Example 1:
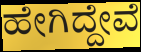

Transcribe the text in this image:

ಹೇಗಿದ್ದೇವೆ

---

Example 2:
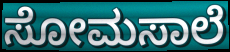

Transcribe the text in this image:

ಸೋಮಸಾಲೆ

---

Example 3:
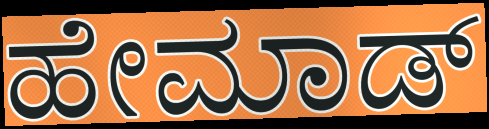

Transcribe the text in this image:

ಹೇಮಾಡ್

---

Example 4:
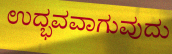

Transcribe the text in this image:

ಉದ್ಭವವಾಗುವುದು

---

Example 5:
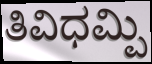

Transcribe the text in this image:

ತಿವಿಧಮ್ಪಿ